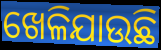
ଖେଳିଯାଉଛି